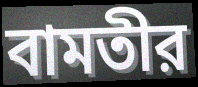
বামতীর